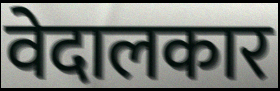
वेदालकार